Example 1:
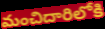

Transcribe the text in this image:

మంచిదారిలోకి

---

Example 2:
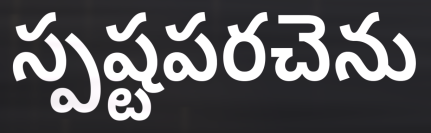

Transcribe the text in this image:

స్పష్టపరచెను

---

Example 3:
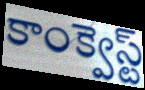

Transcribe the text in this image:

కాంక్వెస్ట్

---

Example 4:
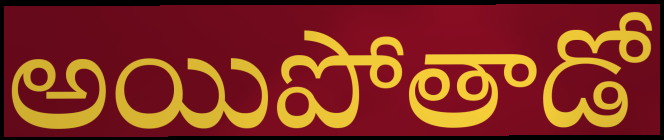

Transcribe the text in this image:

అయిపోతాడో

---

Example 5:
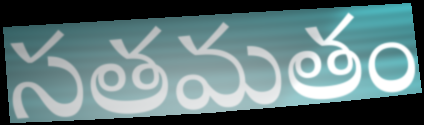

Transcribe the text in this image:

సతమతం